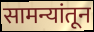
सामन्यांतून